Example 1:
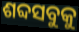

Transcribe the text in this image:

ଶବ୍ଦସବୁକୁ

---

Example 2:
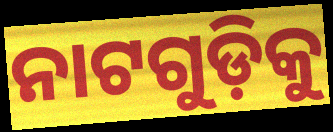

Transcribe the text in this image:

ନାଟଗୁଡ଼ିକୁ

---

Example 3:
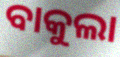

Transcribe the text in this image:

ବାକୁଲା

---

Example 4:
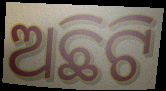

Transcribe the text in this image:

ଅଛିଟି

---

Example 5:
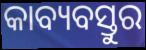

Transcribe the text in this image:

କାବ୍ୟବସ୍ତୁର